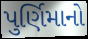
પુર્ણિમાનો